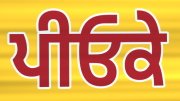
ਪੀਓਕੇ